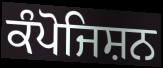
ਕੰਪੋਜਿਸ਼ਨ